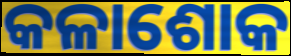
କଳାଶୋକ